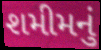
શમીમનું